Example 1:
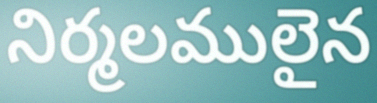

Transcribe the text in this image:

నిర్మలములైన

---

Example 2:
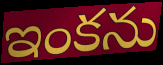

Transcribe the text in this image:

ఇంకను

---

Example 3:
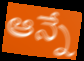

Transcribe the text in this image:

ఆన్నే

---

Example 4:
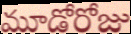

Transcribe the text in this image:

మూడోరోజు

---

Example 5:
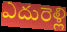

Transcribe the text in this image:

ఎదురెళ్లి